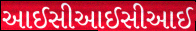
આઈસીઆઈસીઆઈ